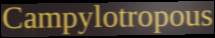
Campylotropous